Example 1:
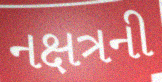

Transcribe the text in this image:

નક્ષત્રની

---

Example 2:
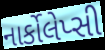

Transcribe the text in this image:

નાર્કોલેપ્સી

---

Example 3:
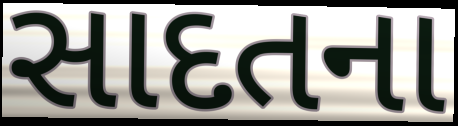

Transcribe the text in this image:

સાદતના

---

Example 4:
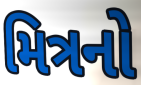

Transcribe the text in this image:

મિત્રનો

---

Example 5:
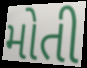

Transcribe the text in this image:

મોતી